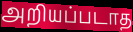
அறியப்படாத